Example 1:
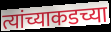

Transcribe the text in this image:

त्यांच्याकडच्या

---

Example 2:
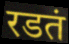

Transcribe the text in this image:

रडतं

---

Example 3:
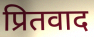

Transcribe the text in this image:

प्रितवाद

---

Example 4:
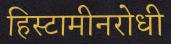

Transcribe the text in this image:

हिस्टामीनरोधी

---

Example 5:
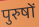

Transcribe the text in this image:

पुरुषों